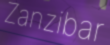
Zanzibar